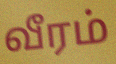
வீரம்